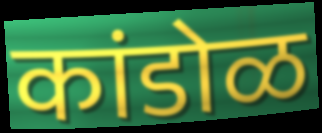
कांडोळ